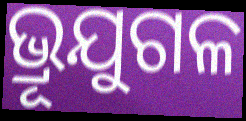
ଭ୍ରୂଯୁଗଳ